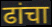
ढांचा